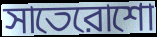
সাতেরোশো